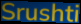
Srushti